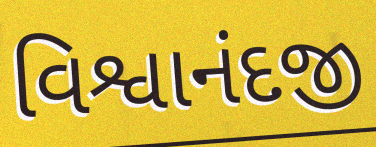
વિશ્વાનંદજી